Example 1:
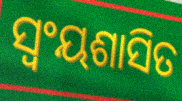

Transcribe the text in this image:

ସ୍ୱଂୟଶାସିତ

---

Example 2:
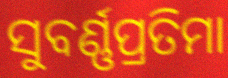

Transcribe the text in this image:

ସୁବର୍ଣ୍ଣପ୍ରତିମା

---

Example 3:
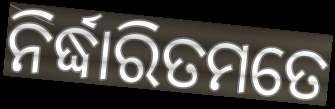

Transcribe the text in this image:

ନିର୍ଦ୍ଧାରିତମତେ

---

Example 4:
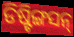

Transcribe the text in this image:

ଡିଷ୍ଟିଙ୍ଗସନ୍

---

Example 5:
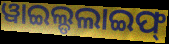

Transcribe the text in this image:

ୱାଇଲ୍ଡଲାଇଫ୍